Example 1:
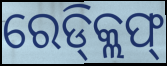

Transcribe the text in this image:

ରେଡ୍କ୍ଲିଫ୍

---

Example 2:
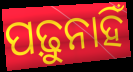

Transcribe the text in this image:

ପଢ଼ୁନାହିଁ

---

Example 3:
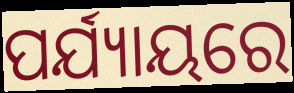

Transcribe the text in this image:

ପର୍ଯ୍ୟାୟରେ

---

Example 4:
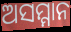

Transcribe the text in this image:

ଅସମ୍ମାନ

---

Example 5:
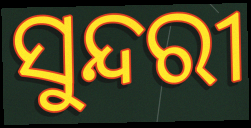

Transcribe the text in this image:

ସୁନ୍ଦରୀ